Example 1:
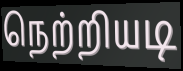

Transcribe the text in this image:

நெற்றியடி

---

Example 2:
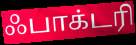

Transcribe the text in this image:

ஃபாக்டரி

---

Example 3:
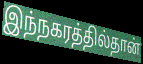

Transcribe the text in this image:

இந்நகரத்தில்தான்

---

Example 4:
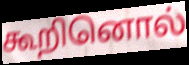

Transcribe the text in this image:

கூறினொல்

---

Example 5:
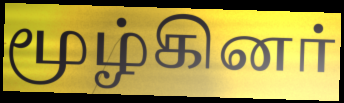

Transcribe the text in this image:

மூழ்கினர்